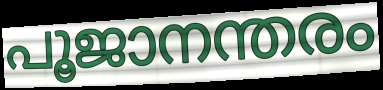
പൂജാനന്തരം